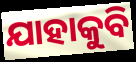
ଯାହାକୁବି